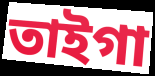
তাইগা